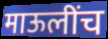
माऊलींच